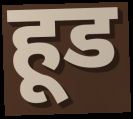
हूड